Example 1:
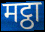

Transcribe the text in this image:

मट्ठा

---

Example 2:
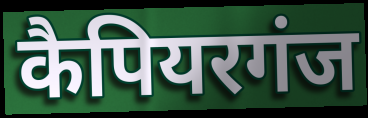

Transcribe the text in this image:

कैपियरगंज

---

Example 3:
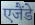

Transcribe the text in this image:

एजैंडे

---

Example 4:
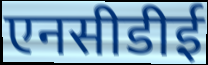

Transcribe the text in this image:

एनसीडीई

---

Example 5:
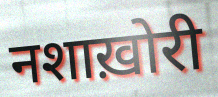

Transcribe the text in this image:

नशाख़ोरी